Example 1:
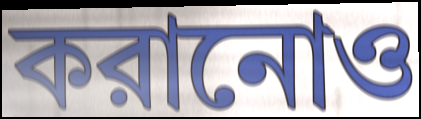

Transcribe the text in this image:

করানোও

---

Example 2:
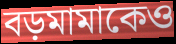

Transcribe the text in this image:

বড়মামাকেও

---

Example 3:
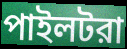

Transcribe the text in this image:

পাইলটরা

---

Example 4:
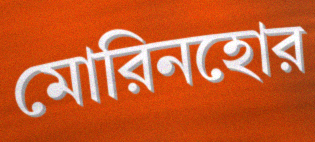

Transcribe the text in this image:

মোরিনহোর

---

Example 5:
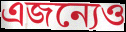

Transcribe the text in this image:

এজন্যেও